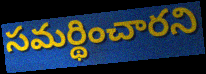
సమర్థించారని